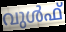
വുൾഫ്